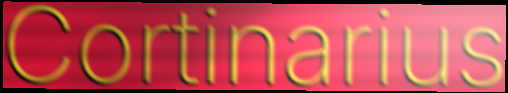
Cortinarius